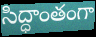
సిద్ధాంతంగా